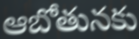
ఆబోతునకు